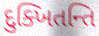
દુક્ખિતન્તિ